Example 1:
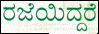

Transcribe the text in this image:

ರಜೆಯಿದ್ದರೆ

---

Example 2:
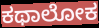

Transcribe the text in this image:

ಕಥಾಲೋಕ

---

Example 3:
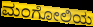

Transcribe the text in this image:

ಮಂಗೋಲಿಯ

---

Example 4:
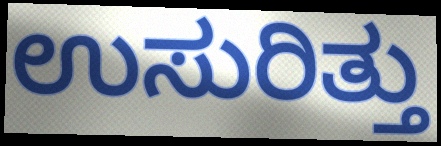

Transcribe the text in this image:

ಉಸುರಿತ್ತು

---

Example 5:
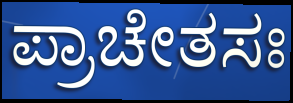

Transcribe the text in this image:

ಪ್ರಾಚೇತಸಃ